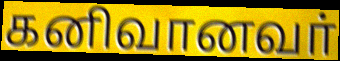
கனிவானவர்